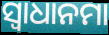
ସ୍ଵାଧାନମା